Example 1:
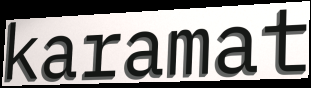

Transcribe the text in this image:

karamat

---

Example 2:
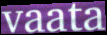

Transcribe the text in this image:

vaata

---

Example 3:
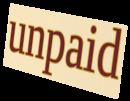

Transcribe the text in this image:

unpaid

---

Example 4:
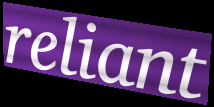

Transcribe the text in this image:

reliant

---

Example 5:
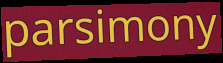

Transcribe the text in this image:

parsimony